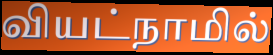
வியட்நாமில்